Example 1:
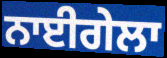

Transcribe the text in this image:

ਨਾਈਗੇਲਾ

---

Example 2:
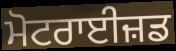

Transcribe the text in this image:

ਮੋਟਰਾਈਜ਼ਡ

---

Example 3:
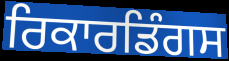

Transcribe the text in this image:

ਰਿਕਾਰਡਿੰਗਸ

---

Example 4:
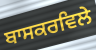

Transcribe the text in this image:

ਬਾਸਕਰਵਿਲੇ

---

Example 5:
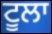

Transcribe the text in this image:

ਟੂਲਾ